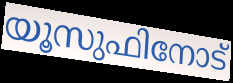
യൂസുഫിനോട്